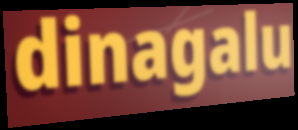
dinagalu